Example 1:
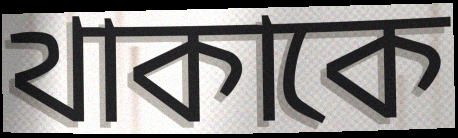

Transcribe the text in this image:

থাকাকে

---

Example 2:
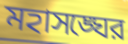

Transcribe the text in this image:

মহাসঙ্ঘের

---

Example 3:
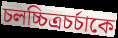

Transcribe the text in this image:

চলচ্চিত্রচর্চাকে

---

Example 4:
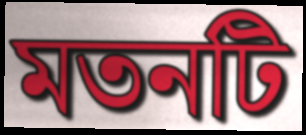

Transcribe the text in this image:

মতনটি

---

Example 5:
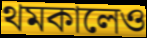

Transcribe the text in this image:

থমকালেও